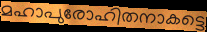
മഹാപുരോഹിതനാകട്ടെ